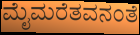
ಮೈಮರೆತವನಂತೆ